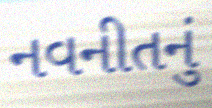
નવનીતનું